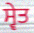
ਸ੍ਵੇਤ